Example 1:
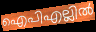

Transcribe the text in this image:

ഐപിഎല്ലിൽ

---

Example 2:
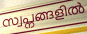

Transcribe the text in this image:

സ്വപ്നങ്ങളിൽ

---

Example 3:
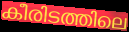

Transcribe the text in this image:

കീരിടത്തിലെ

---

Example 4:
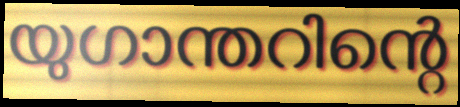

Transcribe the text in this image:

യുഗാന്തറിന്റെ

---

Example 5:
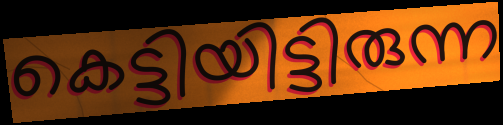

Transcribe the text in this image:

കെട്ടിയിട്ടിരുന്ന